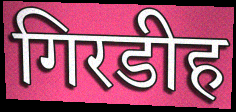
गिरडीह